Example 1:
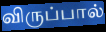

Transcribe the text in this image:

விருப்பால்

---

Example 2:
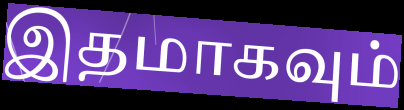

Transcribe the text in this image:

இதமாகவும்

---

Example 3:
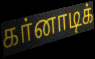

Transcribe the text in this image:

கர்னாடிக்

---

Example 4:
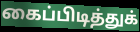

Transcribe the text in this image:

கைப்பிடித்துக்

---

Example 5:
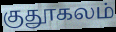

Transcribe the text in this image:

குதூகலம்